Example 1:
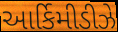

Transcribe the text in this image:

આર્કિમીડીઝે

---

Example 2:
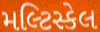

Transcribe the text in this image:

મલ્ટિસ્કેલ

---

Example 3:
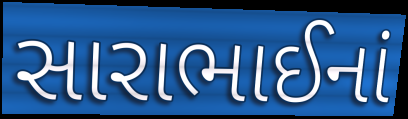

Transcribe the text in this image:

સારાભાઈનાં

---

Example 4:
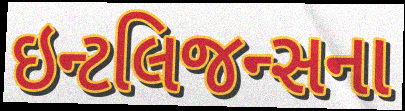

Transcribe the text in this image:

ઇન્ટલિજન્સના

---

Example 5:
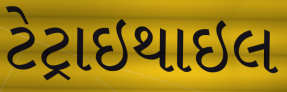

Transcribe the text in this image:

ટેટ્રાઇથાઇલ